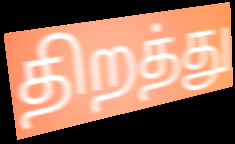
திறத்து